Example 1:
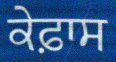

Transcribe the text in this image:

ਕੇਫ਼ਾਸ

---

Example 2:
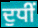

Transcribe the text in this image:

ਦੁਧੀਂ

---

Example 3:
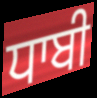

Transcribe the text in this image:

ਧਾਬੀ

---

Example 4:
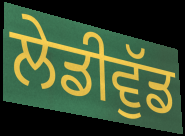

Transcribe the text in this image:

ਲੇਡੀਵੁੱਡ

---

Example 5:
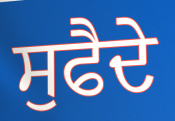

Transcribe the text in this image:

ਸੁਫੈਦੇ